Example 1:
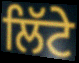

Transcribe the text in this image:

ਲਿੱਟੇ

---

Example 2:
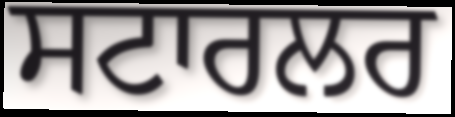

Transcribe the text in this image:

ਸਟਾਰਲਰ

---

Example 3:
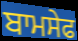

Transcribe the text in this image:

ਬਾਮਸੇਫ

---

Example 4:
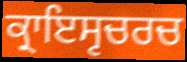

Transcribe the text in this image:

ਕ੍ਰਾਇਸ੍ਟਚਰਚ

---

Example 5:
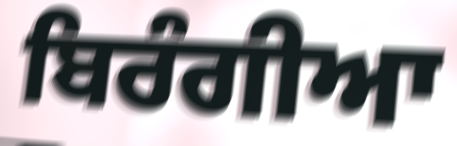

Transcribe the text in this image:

ਬਿਰੰਗੀਆ